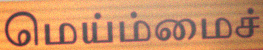
மெய்ம்மைச்